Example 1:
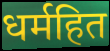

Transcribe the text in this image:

धर्महित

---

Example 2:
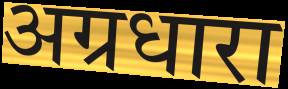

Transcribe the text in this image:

अग्रधारा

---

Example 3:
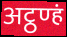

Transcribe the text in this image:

अट्ठण्हं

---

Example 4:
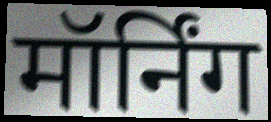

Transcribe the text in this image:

मॉर्निंग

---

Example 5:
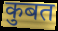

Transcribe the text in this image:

कुबत